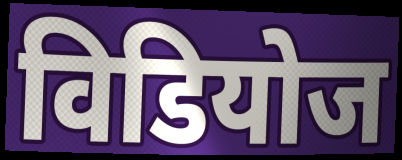
विडियोज